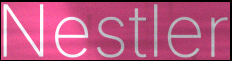
Nestler